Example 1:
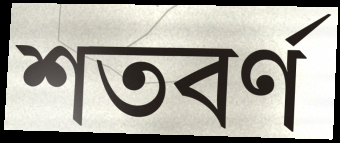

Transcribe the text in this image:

শতবর্ণ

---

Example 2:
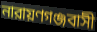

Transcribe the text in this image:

নারায়ণগঞ্জবাসী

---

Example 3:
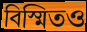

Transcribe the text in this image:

বিস্মিতও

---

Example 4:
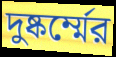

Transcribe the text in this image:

দুষ্কর্ম্মের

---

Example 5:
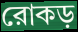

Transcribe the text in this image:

রোকড়